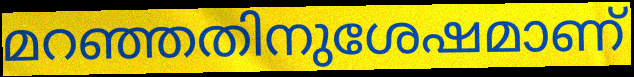
മറഞ്ഞതിനുശേഷമാണ്